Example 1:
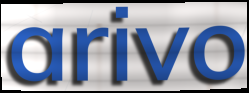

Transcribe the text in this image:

arivo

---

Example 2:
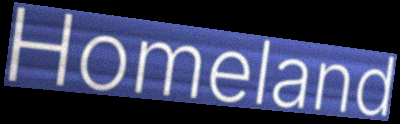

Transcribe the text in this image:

Homeland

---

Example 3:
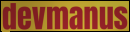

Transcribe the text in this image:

devmanus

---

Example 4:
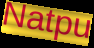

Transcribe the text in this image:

Natpu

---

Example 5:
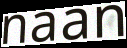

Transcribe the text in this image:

naan